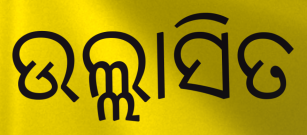
ଉଲ୍ଲାସିତ